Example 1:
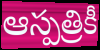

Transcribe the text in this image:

ఆస్పత్రికీ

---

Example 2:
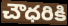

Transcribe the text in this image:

చౌధరికి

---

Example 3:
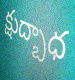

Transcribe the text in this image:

క్షుద్బాధ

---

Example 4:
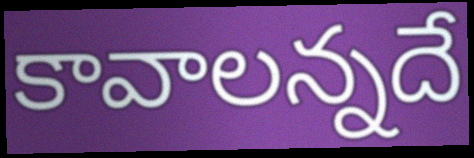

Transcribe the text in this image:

కావాలన్నదే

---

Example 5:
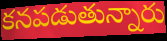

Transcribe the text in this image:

కనపడుతున్నారు